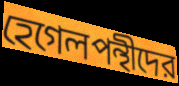
হেগেলপন্থীদের